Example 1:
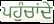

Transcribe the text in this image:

ਪਹੁੰਚਾਂਦੇ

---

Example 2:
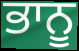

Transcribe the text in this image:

ਭਾਨੂ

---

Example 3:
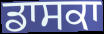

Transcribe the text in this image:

ਡਾਸਕਾ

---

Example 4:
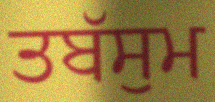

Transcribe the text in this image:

ਤਬੱਸੁਮ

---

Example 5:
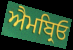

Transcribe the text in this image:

ਐਮਬ੍ਰਿਓ